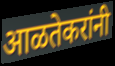
आळतेकरांनी